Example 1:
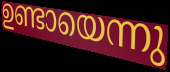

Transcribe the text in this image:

ഉണ്ടായെന്നു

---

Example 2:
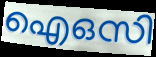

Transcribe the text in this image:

ഐഒസി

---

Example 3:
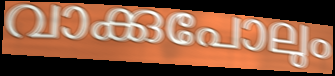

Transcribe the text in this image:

വാക്കുപോലും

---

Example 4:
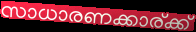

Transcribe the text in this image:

സാധാരണക്കാര്ക്ക്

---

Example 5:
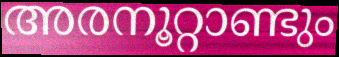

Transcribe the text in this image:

അരനൂറ്റാണ്ടും